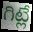
గిట్లే